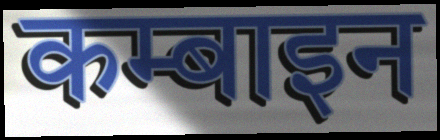
कम्बाइन